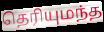
தெரியுமந்த